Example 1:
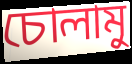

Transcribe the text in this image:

চোলামু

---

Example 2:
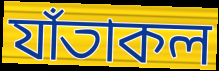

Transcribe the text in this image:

যাঁতাকল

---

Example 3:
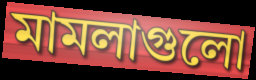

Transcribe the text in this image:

মামলাগুলো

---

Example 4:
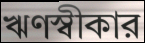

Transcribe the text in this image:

ঋণস্বীকার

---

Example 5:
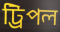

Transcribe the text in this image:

ট্রিপল